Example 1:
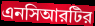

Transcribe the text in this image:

এনসিআরটির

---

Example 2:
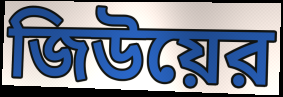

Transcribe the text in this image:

জিউয়ের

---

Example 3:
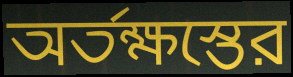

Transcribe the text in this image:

অর্তক্ষস্তের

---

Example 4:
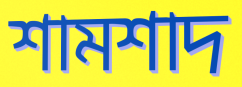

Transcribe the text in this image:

শামশাদ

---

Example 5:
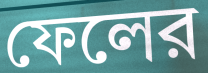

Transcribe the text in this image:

ফেলের